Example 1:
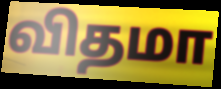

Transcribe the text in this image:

விதமா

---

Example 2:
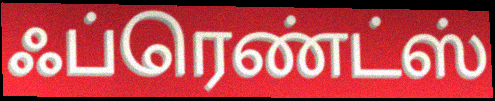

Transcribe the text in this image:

ஃப்ரெண்ட்ஸ்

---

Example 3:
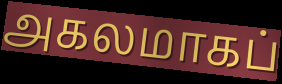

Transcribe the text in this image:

அகலமாகப்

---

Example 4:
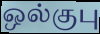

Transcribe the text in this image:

ஒல்குபு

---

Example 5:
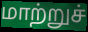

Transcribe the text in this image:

மாற்றுச்